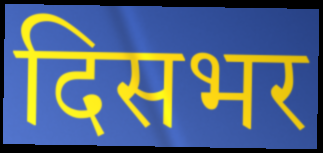
दिसभर